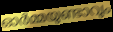
ഓർമ്മയുണ്ടാവും